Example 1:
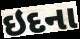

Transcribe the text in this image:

ઇદના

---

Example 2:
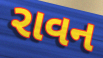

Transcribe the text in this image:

રાવન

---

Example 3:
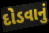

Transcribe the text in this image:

દોડવાનું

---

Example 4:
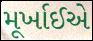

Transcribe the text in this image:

મૂર્ખાઈએ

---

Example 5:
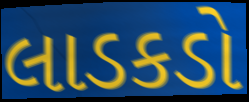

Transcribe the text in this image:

લાડકડો